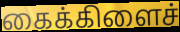
கைக்கிளைச்